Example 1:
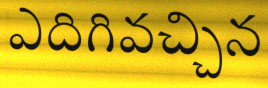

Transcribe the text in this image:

ఎదిగివచ్చిన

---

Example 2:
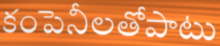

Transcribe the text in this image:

కంపెనీలతోపాటు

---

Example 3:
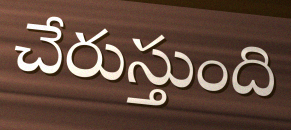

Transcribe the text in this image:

చేరుస్తుంది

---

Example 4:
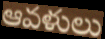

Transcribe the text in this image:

ఆవళులు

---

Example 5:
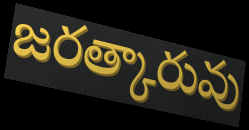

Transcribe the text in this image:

జరత్కారువు